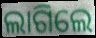
ଲାଗିଲେ